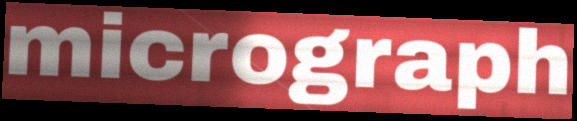
micrograph